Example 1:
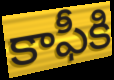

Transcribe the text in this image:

కాఫీకి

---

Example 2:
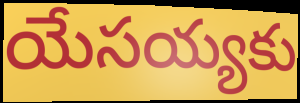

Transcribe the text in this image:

యేసయ్యకు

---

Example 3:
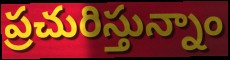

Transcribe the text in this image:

ప్రచురిస్తున్నాం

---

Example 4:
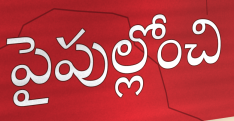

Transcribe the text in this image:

పైపుల్లోంచి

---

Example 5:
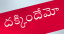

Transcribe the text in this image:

దక్కిందేమో